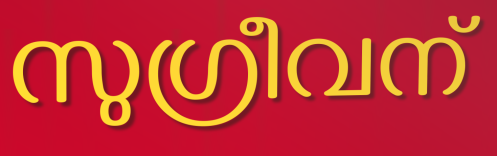
സുഗ്രീവന്